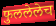
फुललेलेच